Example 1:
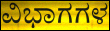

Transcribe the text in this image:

ವಿಭಾಗಗಳ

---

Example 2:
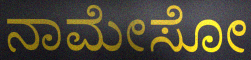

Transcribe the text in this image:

ನಾಮೇಸೋ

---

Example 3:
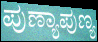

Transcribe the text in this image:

ಪುಣ್ಯಾಪುಣ್ಯ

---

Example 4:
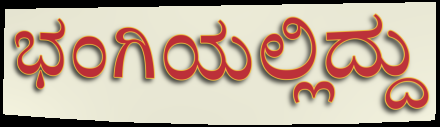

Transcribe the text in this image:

ಭಂಗಿಯಲ್ಲಿದ್ದು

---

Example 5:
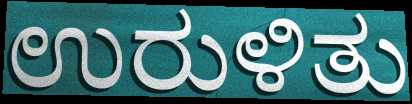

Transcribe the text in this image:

ಉರುಳಿತು